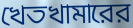
খেতখামারের